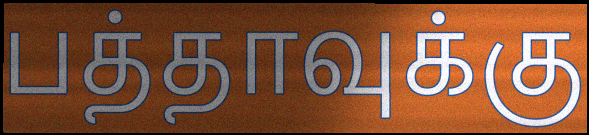
பத்தாவுக்கு